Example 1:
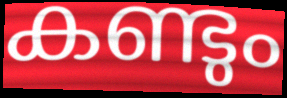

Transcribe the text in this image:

കണ്ടും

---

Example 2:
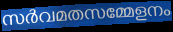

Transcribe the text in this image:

സർവമതസമ്മേളനം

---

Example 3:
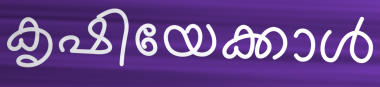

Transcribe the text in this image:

കൃഷിയേക്കാൾ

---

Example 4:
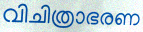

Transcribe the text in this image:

വിചിത്രാഭരണ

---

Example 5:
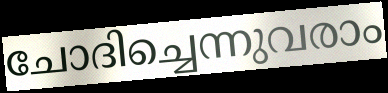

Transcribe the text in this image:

ചോദിച്ചെന്നുവരാം